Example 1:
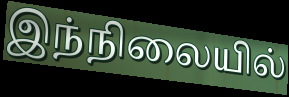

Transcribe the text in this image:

இந்நிலையில்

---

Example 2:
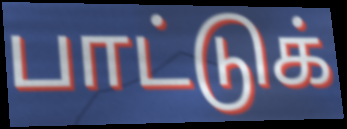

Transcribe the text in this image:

பாட்டுக்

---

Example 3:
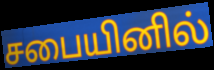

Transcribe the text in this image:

சபையினில்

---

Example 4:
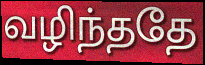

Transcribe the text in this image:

வழிந்ததே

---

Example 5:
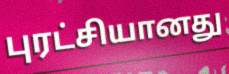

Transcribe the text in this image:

புரட்சியானது